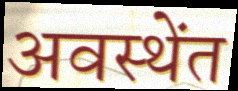
अवस्थेंत